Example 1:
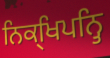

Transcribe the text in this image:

ਨਿਕ੍ਖਿਪਨ੍ਤਿ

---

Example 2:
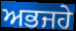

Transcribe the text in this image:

ਅਭਜਹੇ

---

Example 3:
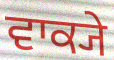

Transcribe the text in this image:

ਵਾਕ੍ਯੇ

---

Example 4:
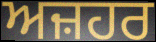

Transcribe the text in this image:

ਅਜ਼ਹਰ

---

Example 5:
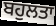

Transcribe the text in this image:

ਬਹੁਲਤਾ